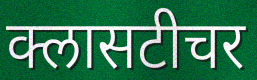
क्लासटीचर